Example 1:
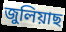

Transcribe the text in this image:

জুলিয়াছ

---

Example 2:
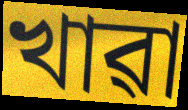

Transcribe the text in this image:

খাৱা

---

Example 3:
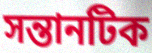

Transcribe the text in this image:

সন্তানটিক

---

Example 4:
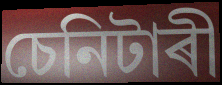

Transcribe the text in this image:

চেনিটাৰী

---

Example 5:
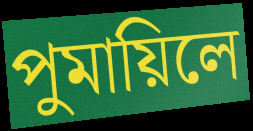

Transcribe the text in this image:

পুমায়িলে